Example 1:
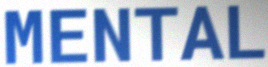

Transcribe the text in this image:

MENTAL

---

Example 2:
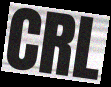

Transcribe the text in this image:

CRL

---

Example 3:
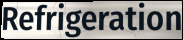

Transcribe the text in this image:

Refrigeration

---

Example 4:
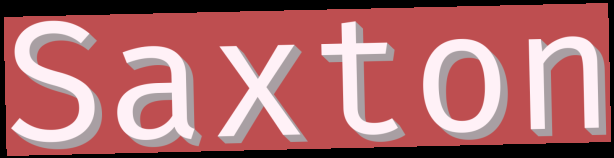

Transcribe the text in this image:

Saxton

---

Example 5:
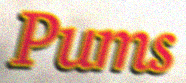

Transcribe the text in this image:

Pums